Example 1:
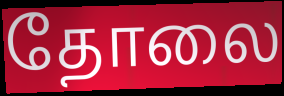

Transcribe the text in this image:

தோலை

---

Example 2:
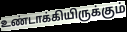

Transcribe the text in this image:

உண்டாக்கியிருக்கும்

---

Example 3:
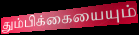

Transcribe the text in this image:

தும்பிக்கையையும்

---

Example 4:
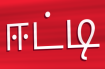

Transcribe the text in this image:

ஈட்டி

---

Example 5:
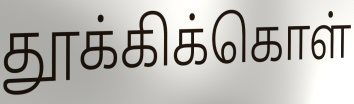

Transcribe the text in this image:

தூக்கிக்கொள்